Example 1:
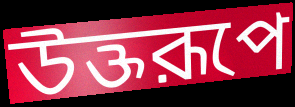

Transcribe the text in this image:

উক্তরূপে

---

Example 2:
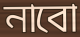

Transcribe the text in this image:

নাবো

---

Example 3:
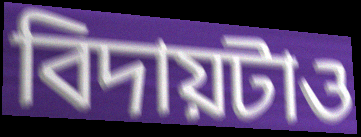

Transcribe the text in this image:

বিদায়টাও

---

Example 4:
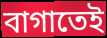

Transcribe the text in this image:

বাগাতেই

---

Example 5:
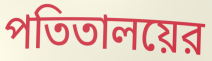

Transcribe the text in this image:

পতিতালয়ের